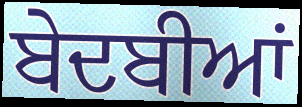
ਬੇਦਬੀਆਂ